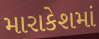
મારાકેશમાં